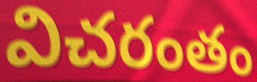
విచరంతం